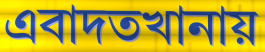
এবাদতখানায়